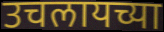
उचलायच्या